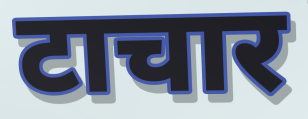
टाचार